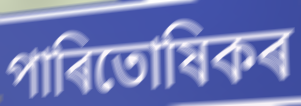
পাৰিতোষিকৰ